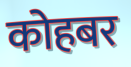
कोहबर